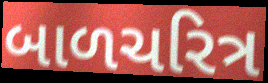
બાળચરિત્ર